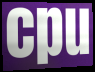
cpu